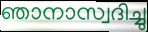
ഞാനാസ്വദിച്ചു